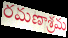
రమణాశ్రమ